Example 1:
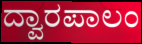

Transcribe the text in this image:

ದ್ವಾರಪಾಲಂ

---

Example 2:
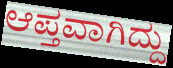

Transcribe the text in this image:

ಆಪ್ತವಾಗಿದ್ದು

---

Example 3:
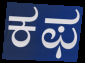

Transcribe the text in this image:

ಕಫ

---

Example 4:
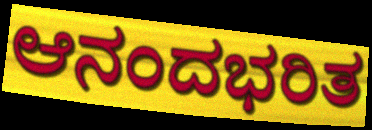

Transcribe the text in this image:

ಆನಂದಭರಿತ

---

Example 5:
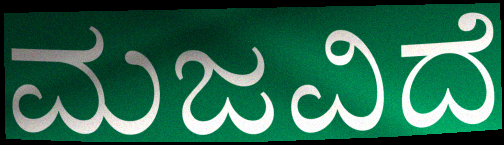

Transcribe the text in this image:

ಮಜವಿದೆ